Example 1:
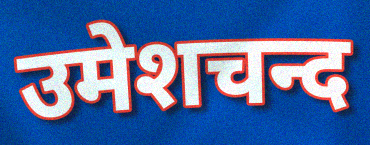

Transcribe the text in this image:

उमेशचन्द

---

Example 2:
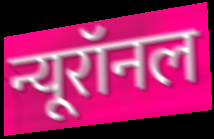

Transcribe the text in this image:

न्यूरॉनल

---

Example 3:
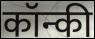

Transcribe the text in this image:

कॉन्की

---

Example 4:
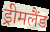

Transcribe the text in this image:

ड्रीमलैंड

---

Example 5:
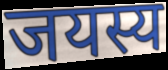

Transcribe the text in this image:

जयस्य